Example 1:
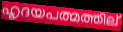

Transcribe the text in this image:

ഹൃദയപത്മത്തില്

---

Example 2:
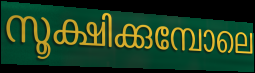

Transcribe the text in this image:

സൂക്ഷിക്കുമ്പോലെ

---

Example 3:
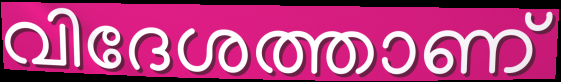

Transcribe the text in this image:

വിദേശത്താണ്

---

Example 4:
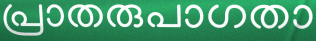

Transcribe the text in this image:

പ്രാതരുപാഗതാ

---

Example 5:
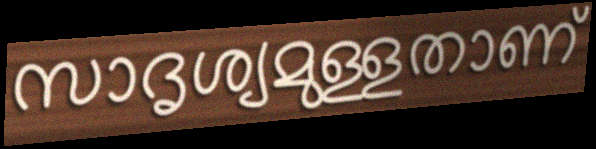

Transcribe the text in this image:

സാദൃശ്യമുള്ളതാണ്